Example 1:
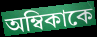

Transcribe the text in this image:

অম্বিকাকে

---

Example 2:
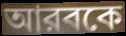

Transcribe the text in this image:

আরবকে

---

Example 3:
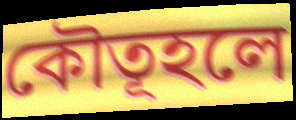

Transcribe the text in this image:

কৌতূহলে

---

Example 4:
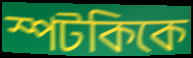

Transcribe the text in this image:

স্পটকিকে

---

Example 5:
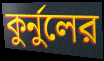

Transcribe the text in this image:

কুর্নুলের